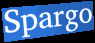
Spargo